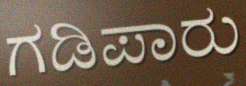
ಗಡಿಪಾರು